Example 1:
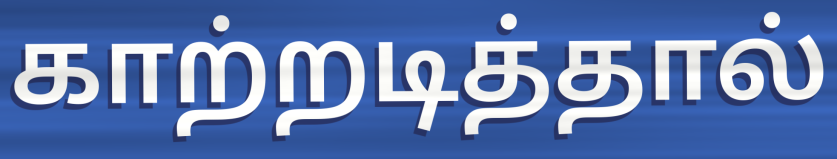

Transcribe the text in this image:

காற்றடித்தால்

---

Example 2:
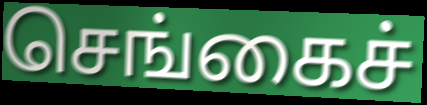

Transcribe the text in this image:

செங்கைச்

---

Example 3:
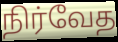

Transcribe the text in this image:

நிர்வேத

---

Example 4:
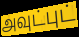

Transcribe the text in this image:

அவுட்புட்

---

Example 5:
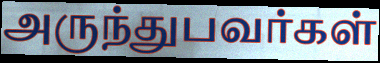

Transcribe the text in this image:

அருந்துபவர்கள்